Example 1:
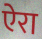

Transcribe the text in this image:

ऐरा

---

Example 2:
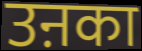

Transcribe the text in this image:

उऩका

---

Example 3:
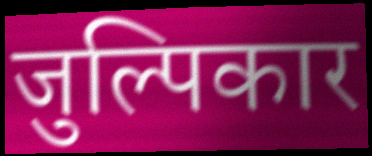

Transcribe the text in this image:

जुल्पिकार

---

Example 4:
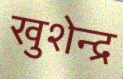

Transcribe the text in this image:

खुशेन्द्र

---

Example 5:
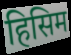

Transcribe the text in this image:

हिसिम